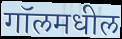
गॉलमधील